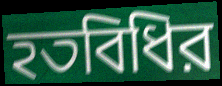
হতবিধির